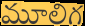
మూలిగ